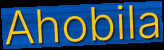
Ahobila